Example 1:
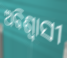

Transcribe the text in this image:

ଅବିଶ୍ଵାସୀ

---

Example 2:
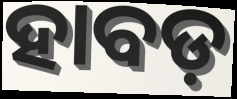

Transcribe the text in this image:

ହାବଡ଼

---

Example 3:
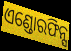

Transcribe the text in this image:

ଏଣ୍ଡୋରଫିନ୍ସ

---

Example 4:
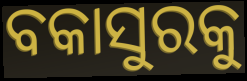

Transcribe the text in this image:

ବକାସୁରକୁ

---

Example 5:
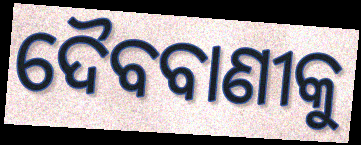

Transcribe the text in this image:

ଦୈବବାଣୀକୁ